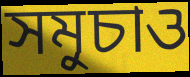
সমুচাও